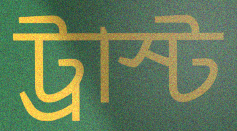
ট্রাস্ট